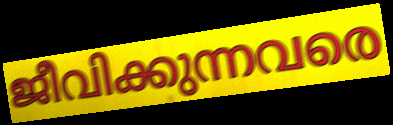
ജീവിക്കുന്നവരെ